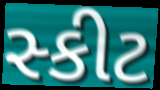
સ્કીટ